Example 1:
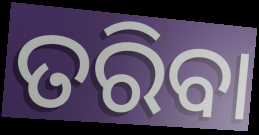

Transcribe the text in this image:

ତରିବା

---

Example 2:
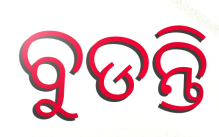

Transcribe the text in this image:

ବୁଡନ୍ତି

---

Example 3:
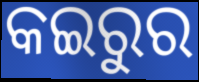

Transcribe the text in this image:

କଇରୁର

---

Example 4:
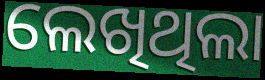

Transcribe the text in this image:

ଲେଖିଥିଲା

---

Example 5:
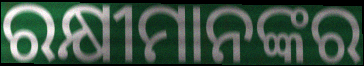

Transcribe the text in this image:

ରକ୍ଷୀମାନଙ୍କର